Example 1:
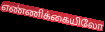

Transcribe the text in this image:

எண்ணிக்கையிலோ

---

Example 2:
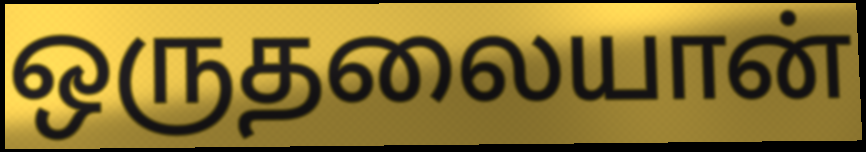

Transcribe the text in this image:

ஒருதலையான்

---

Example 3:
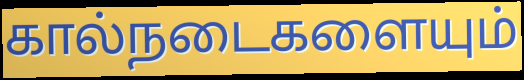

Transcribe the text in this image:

கால்நடைகளையும்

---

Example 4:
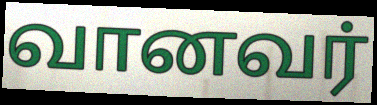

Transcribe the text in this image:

வானவர்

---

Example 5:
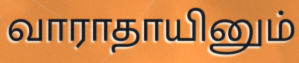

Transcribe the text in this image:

வாராதாயினும்